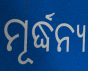
ମୂର୍ଦ୍ଧନ୍ୟ